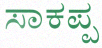
ಸಾಕಪ್ಪ